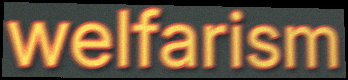
welfarism